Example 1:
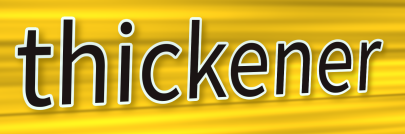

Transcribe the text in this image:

thickener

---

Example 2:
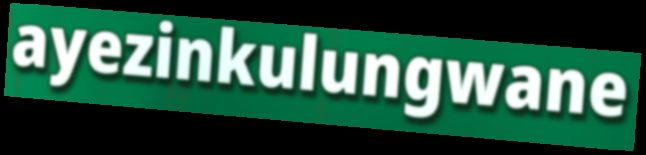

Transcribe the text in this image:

ayezinkulungwane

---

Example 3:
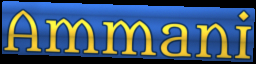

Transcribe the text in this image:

Ammani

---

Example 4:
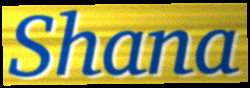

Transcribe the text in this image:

Shana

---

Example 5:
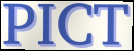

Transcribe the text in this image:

PICT